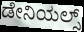
ಡೇನಿಯಲ್ಸ್